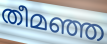
തീമഞ്ഞ